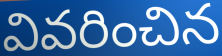
వివరించిన